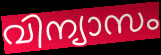
വിന്യാസം